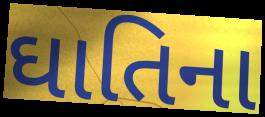
ઘાતિના